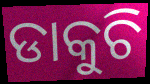
ଡାକୁଚି